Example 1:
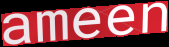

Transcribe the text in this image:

ameen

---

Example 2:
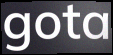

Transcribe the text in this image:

gota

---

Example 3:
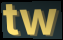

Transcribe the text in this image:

tw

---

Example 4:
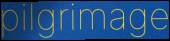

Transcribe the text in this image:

pilgrimage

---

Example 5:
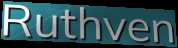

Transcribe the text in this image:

Ruthven